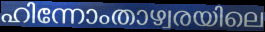
ഹിന്നോംതാഴ്വരയിലെ